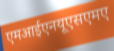
एमआईएनयूएसएमए